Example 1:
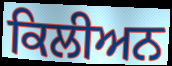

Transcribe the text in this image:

ਕਿਲੀਅਨ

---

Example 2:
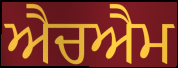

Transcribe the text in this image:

ਐਚਐਮ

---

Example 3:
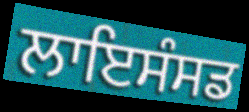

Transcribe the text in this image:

ਲਾਇਸੰਸਡ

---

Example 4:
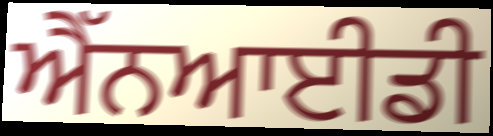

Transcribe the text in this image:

ਐੱਨਆਈਡੀ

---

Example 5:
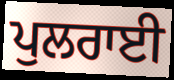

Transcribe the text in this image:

ਪੁਲਰਾਈ